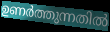
ഉണർത്തുന്നതിൽ